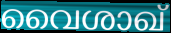
വൈശാഖ്